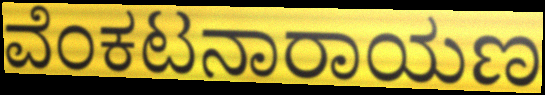
ವೆಂಕಟನಾರಾಯಣ